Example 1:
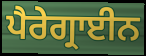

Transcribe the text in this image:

ਪੈਰੇਗ੍ਰਾਈਨ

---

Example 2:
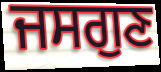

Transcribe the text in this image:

ਜਸਗੁਣ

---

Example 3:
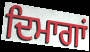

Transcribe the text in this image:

ਦਿਮਾਗਾਂ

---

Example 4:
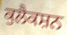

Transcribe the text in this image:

ਕੁਲੈਕਸ਼ਨ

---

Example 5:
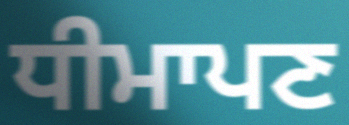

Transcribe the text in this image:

ਧੀਮਾਪਣ